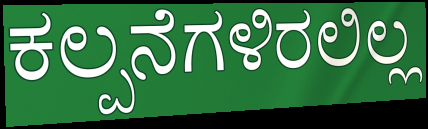
ಕಲ್ಪನೆಗಳಿರಲಿಲ್ಲ